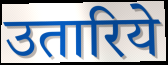
उतारिये